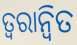
ତ୍ଵରାନ୍ବିତ